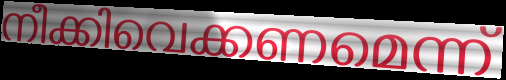
നീക്കിവെക്കണമെന്ന്